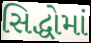
સિદ્ધોમાં